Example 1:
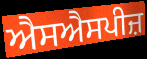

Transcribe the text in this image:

ਐਸਐਸਪੀਜ਼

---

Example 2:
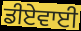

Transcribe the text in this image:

ਡੀਏਵਾਈ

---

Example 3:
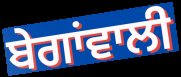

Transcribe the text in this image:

ਬੇਗਾਂਵਾਲੀ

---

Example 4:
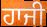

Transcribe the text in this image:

ਹਾਜੀ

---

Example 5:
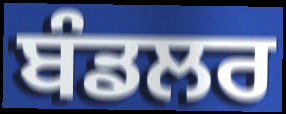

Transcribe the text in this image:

ਬੰਡਲਰ